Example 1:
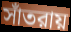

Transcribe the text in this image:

সাঁতরায়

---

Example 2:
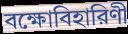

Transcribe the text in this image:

বক্ষোবিহারিণী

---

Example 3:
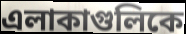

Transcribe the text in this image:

এলাকাগুলিকে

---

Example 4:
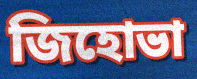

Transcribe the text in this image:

জিহোভা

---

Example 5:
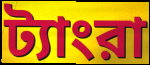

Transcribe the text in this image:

ট্যাংরা